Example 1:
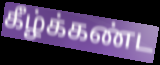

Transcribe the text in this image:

கீழ்க்கண்ட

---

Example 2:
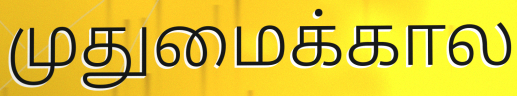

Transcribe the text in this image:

முதுமைக்கால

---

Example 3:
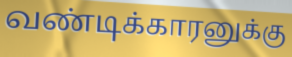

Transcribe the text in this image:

வண்டிக்காரனுக்கு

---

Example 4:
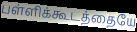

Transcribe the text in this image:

பள்ளிக்கூடத்தையே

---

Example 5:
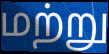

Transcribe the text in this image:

மற்று